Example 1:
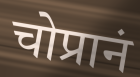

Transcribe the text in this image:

चोप्रानं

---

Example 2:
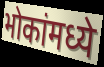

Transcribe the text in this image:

भोकांमध्ये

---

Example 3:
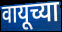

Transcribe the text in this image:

वायूच्या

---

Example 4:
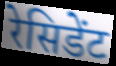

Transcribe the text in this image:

रेसिडेंट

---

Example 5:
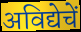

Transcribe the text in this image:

अविद्येचें